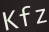
Kfz